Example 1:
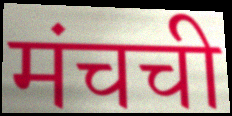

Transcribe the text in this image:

मंचची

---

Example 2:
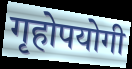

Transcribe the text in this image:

गृहोपयोगी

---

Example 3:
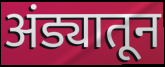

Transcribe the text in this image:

अंड्यातून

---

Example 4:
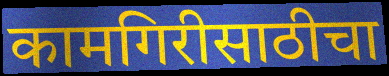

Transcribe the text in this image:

कामगिरीसाठीचा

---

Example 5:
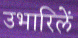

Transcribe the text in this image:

उभारिलें